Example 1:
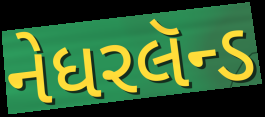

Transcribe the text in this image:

નેધરલૅન્ડ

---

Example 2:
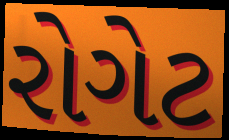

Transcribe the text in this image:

રોગેટ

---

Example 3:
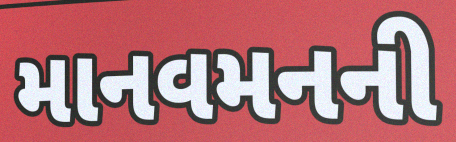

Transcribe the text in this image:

માનવમનની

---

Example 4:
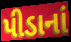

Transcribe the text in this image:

પીડાનાં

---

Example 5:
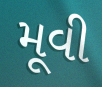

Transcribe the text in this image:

મૂવી